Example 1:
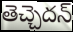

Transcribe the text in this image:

తెచ్చెదన్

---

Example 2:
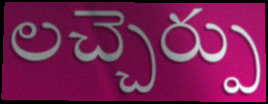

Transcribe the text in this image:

లచ్చెర్పు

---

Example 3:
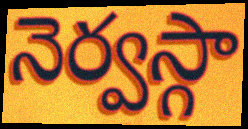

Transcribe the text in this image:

నెర్వస్గా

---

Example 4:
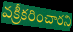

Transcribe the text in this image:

వక్రీకరించారని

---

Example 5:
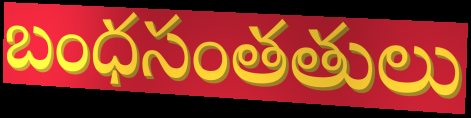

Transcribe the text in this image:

బంధసంతతులు